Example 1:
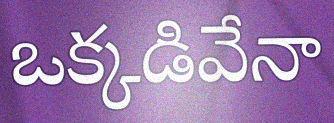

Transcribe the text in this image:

ఒక్కడివేనా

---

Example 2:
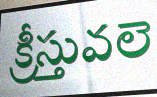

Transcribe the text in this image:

క్రీస్తువలె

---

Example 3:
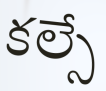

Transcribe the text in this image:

కల్సే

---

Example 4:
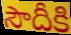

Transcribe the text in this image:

సౌదీకి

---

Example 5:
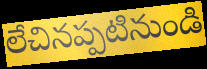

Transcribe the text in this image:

లేచినప్పటినుండి